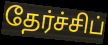
தேர்ச்சிப்